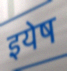
इयेष